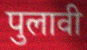
पुलावी